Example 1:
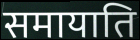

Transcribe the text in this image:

समायाति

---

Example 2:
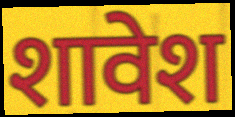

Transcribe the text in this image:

शावेश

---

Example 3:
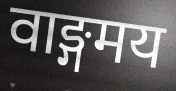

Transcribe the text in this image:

वाङ्गमय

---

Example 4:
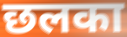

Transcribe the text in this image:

छलका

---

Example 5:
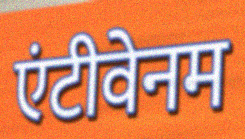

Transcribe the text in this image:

एंटीवेनम